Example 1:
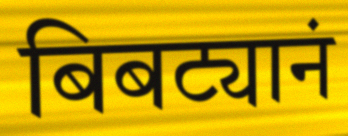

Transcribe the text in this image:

बिबट्यानं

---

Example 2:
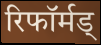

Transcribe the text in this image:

रिफॉर्मड्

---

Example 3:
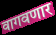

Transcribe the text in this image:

वागवणार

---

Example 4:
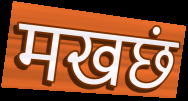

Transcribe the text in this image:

मखछं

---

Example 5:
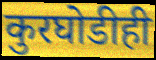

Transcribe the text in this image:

कुरघोडीही